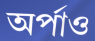
অর্পাও